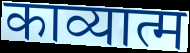
काव्यात्म